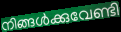
നിങ്ങൾക്കുവേണ്ടി